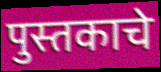
पुस्तकाचे